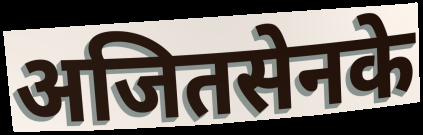
अजितसेनके